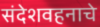
संदेशवहनाचे